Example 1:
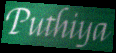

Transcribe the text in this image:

Puthiya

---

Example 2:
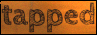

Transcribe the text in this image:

tapped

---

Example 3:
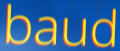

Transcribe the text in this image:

baud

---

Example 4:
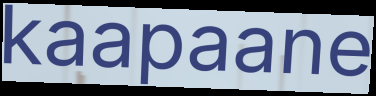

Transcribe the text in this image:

kaapaane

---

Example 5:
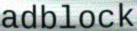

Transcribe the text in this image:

adblock